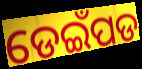
ଡେଇଁପଡ